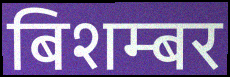
बिशम्बर